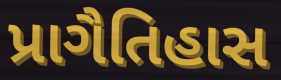
પ્રાગૈતિહાસ